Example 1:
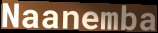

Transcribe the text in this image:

Naanemba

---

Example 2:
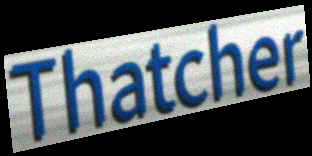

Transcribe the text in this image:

Thatcher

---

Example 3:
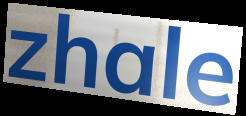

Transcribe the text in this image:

zhale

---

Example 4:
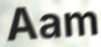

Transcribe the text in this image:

Aam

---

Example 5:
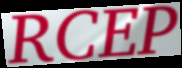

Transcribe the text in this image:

RCEP